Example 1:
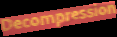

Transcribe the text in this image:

Decompression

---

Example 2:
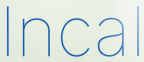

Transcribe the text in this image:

Incal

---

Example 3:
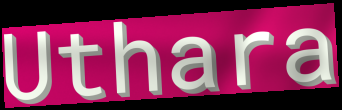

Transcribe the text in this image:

Uthara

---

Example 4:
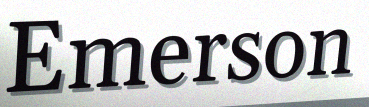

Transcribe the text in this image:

Emerson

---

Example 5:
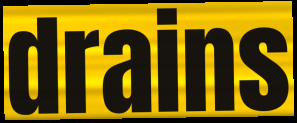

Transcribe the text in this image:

drains